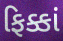
ફિક્કાં